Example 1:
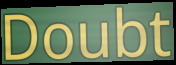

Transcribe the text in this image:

Doubt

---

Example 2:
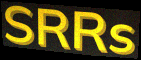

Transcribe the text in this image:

SRRs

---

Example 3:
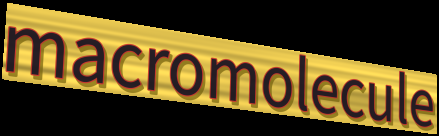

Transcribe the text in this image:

macromolecule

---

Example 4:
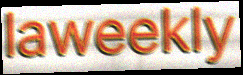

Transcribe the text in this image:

laweekly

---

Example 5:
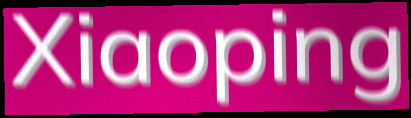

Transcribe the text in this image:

Xiaoping